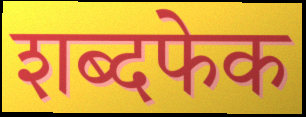
शब्दफेक